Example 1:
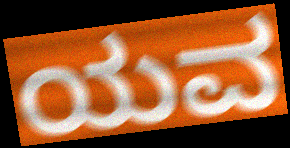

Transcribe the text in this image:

ಯವ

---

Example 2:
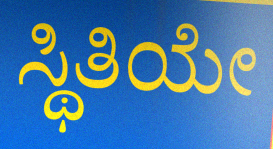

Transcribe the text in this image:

ಸ್ಥಿತಿಯೇ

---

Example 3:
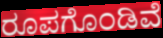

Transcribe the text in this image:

ರೂಪಗೊಂಡಿವೆ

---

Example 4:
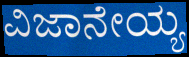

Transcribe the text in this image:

ವಿಜಾನೇಯ್ಯ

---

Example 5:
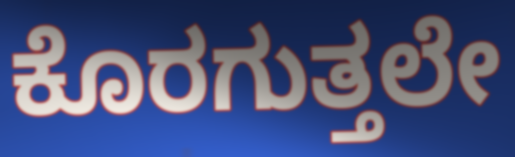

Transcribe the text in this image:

ಕೊರಗುತ್ತಲೇ